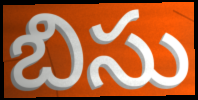
బిసు